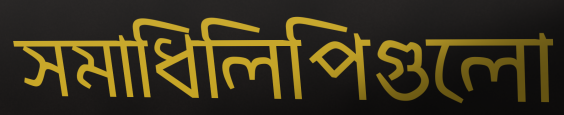
সমাধিলিপিগুলো